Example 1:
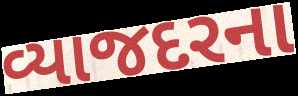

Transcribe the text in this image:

વ્યાજદરના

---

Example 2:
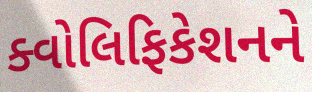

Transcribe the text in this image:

ક્વોલિફિકેશનને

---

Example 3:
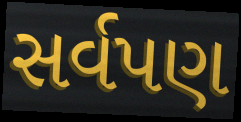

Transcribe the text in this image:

સર્વપણ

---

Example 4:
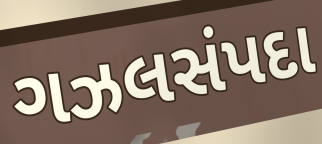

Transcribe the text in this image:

ગઝલસંપદા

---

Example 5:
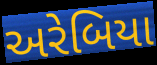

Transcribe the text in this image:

અરેબિયા